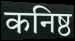
कनिष्ठ